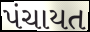
પંચાયત